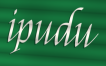
ipudu